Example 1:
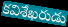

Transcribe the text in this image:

కవిశేఖరుడు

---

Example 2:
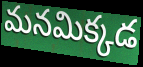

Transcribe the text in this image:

మనమిక్కడ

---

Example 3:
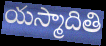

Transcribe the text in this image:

యస్మాదితి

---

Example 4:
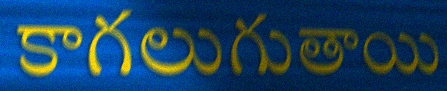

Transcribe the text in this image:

కాగలుగుతాయి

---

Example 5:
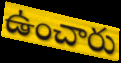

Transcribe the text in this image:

ఉంచారు